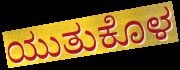
ಯುತುಕೊಳ